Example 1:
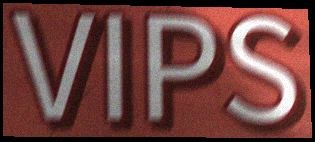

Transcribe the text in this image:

VIPS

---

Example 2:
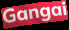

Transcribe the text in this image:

Gangai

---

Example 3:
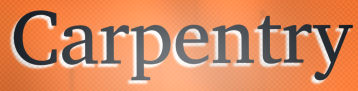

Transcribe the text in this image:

Carpentry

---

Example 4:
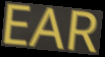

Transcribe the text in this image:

EAR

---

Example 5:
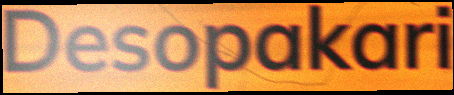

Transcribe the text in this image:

Desopakari